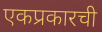
एकप्रकारची